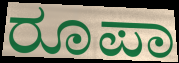
ರೂಪಾ